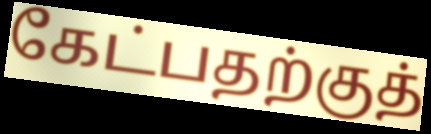
கேட்பதற்குத்